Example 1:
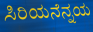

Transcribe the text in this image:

ಸಿರಿಯನೆನ್ನಯ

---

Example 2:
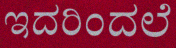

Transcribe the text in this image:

ಇದರಿಂದಲೆ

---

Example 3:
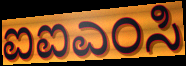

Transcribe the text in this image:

ಐಐಎಂಸಿ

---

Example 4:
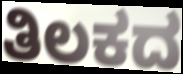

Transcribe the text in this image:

ತಿಲಕದ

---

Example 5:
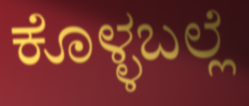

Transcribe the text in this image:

ಕೊಳ್ಳಬಲ್ಲೆ